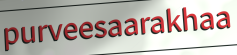
purveesaarakhaa